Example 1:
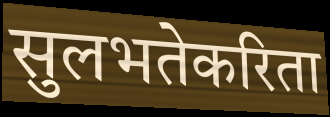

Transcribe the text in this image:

सुलभतेकरिता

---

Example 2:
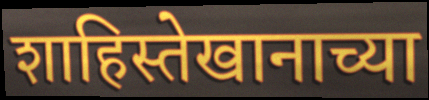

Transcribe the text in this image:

शाहिस्तेखानाच्या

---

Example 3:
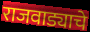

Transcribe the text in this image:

राजवाड्याचे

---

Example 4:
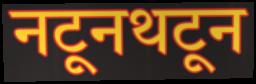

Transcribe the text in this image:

नटूनथटून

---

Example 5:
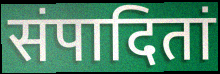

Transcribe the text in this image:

संपादितां